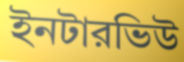
ইনটারভিউ